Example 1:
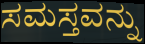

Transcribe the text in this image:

ಸಮಸ್ತವನ್ನು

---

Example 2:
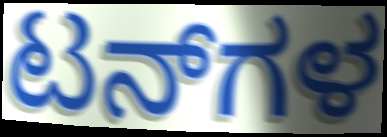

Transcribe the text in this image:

ಟನ್‌ಗಳ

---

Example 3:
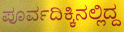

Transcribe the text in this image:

ಪೂರ್ವದಿಕ್ಕಿನಲ್ಲಿದ್ದ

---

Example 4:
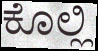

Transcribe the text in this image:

ಕೊಲ್ಲಿ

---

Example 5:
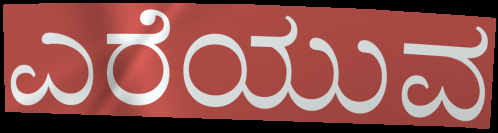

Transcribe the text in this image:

ಎರೆಯುವ